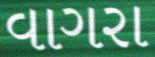
વાગરા